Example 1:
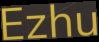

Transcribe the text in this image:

Ezhu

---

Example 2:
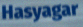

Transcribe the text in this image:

Hasyagar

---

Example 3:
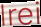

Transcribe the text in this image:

Irei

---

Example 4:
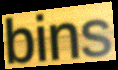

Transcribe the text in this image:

bins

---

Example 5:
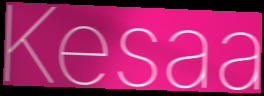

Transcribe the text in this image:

Kesaa